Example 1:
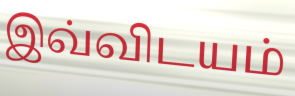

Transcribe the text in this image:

இவ்விடயம்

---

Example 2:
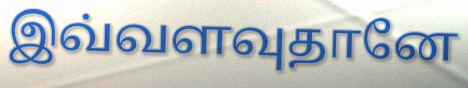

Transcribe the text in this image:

இவ்வளவுதானே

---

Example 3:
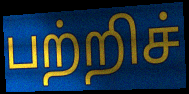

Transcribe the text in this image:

பற்றிச்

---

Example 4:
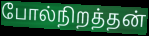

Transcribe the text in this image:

போல்நிறத்தன்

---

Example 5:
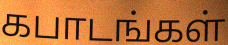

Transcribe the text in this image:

கபாடங்கள்